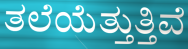
ತಲೆಯೆತ್ತುತ್ತಿವೆ